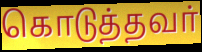
கொடுத்தவர்